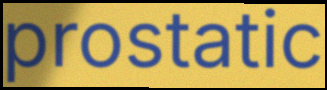
prostatic